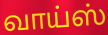
வாய்ஸ்